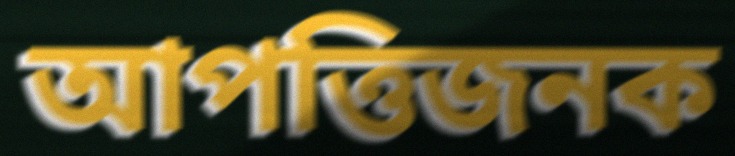
আপত্তিজনক